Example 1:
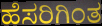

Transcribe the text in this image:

ಹೆಸರಿಗಿಂತ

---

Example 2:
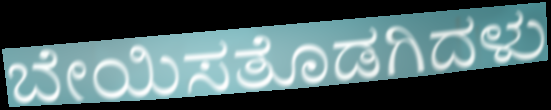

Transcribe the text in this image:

ಬೇಯಿಸತೊಡಗಿದಳು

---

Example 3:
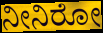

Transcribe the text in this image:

ನೀನಿರೋ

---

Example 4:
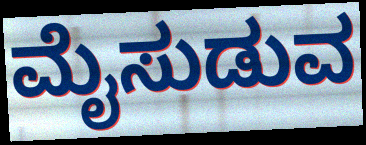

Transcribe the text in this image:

ಮೈಸುಡುವ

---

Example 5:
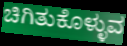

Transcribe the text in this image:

ಚಿಗಿತುಕೊಳ್ಳುವ